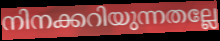
നിനക്കറിയുന്നതല്ലേ